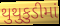
થુથુકુડીમાં